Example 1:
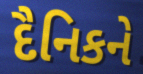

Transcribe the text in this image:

દૈનિકને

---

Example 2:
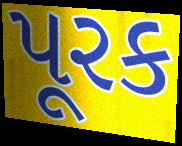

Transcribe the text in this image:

પૂરક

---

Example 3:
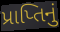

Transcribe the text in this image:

પ્રાપ્તિનું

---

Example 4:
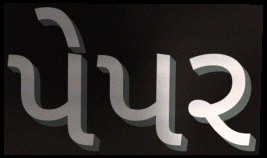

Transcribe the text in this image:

પેપર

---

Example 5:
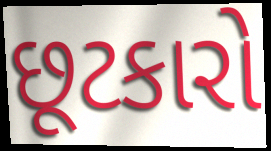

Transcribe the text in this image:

છૂટકારો